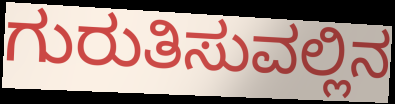
ಗುರುತಿಸುವಲ್ಲಿನ